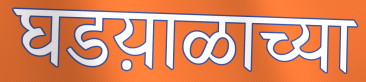
घडय़ाळाच्या